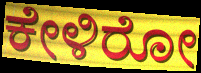
ಕೇಳಿರೋ